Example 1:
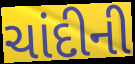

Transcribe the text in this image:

ચાંદીની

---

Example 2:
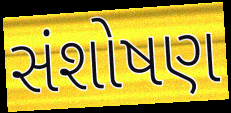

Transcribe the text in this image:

સંશોષણ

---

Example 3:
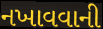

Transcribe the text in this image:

નખાવવાની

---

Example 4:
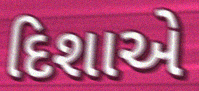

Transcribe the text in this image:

દિશાએ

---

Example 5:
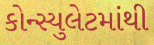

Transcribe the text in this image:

કોન્સ્યુલેટમાંથી